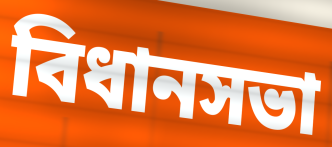
বিধানসভা